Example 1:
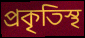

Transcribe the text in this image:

প্রকৃতিস্থ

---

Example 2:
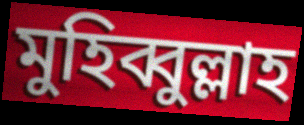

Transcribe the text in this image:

মুহিব্বুল্লাহ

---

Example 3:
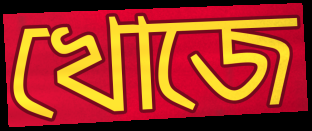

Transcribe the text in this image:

খোজে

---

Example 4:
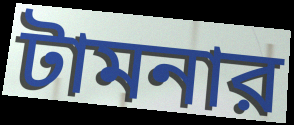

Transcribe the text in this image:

টামনার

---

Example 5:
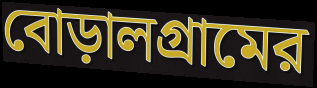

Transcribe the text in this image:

বোড়ালগ্রামের